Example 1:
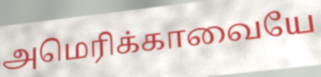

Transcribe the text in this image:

அமெரிக்காவையே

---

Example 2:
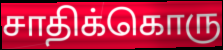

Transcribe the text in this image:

சாதிக்கொரு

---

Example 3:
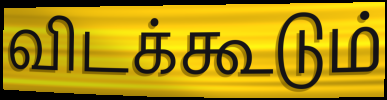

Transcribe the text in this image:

விடக்கூடும்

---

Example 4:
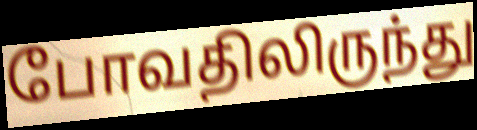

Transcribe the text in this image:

போவதிலிருந்து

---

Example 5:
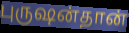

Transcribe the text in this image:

புருஷன்தான்